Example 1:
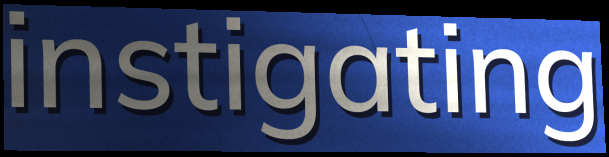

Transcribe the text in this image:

instigating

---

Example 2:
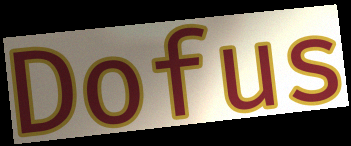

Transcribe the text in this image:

Dofus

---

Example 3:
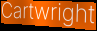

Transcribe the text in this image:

Cartwright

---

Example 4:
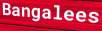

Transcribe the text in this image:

Bangalees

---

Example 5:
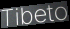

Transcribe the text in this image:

Tibeto